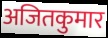
अजितकुमार